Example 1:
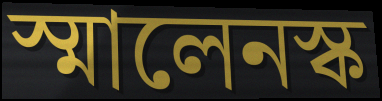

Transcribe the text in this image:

স্মালেনস্ক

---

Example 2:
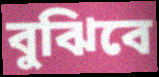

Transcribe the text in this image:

বুঝিবে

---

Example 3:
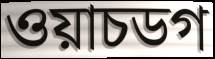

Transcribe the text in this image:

ওয়াচডগ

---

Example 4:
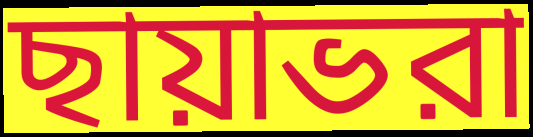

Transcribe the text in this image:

ছায়াভরা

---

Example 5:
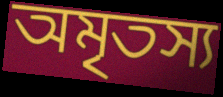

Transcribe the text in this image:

অমৃতস্য